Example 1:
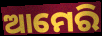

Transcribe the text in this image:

ଆମେରି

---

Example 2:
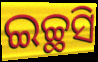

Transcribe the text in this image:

ଇଚ୍ଛସି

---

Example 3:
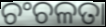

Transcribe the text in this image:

ଚଂଚଳତା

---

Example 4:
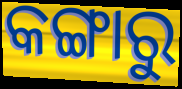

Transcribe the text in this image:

କଙ୍ଗାରୁ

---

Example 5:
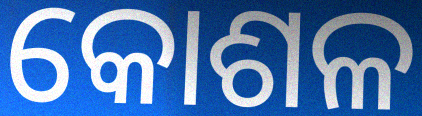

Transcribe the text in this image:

କୋଶଳ